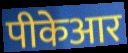
पीकेआर